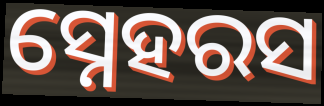
ସ୍ନେହରସ